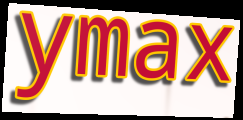
ymax